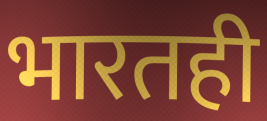
भारतही